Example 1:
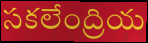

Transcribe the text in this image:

సకలేంద్రియ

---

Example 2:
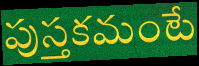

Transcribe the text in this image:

పుస్తకమంటే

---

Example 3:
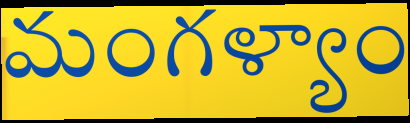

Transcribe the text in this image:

మంగళ్యాం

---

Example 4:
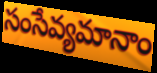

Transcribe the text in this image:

సంసేవ్యమానాం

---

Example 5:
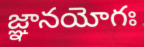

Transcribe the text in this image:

జ్ఞానయోగః